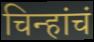
चिन्हांचं